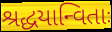
શ્રદ્ધયાન્વિતાઃ